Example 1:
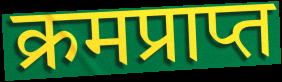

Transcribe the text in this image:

क्रमप्राप्‍त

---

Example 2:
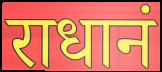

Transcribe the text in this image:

राधानं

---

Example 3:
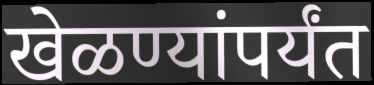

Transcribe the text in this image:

खेळण्यांपर्यंत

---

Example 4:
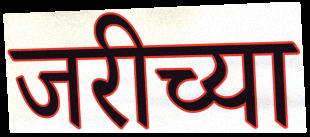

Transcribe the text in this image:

जरीच्या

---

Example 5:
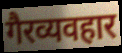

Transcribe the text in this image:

गैरव्यवहार